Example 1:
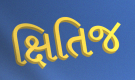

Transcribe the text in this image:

ક્ષિતિજ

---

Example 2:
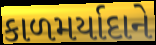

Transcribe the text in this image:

કાળમર્યાદાને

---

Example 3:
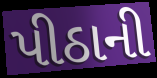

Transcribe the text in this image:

પીઠાની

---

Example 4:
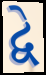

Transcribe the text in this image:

દ્વે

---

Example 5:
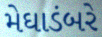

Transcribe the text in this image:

મેઘાડંબરે